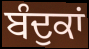
ਬੰਦੁਕਾਂ